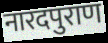
नारदपुराण